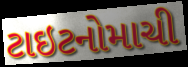
ટાઇટનોમાચી